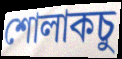
শোলাকচু